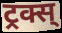
ट्रक्स्